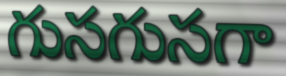
గుసగుసగా